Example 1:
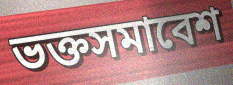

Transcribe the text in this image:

ভক্তসমাবেশ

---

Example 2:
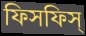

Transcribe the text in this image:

ফিসফিস্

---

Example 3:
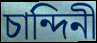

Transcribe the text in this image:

চান্দিনী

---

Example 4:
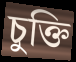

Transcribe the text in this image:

চুক্তি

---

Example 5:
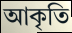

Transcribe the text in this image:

আকৃতি